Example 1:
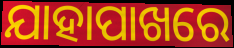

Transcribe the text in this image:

ଯାହାପାଖରେ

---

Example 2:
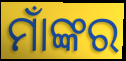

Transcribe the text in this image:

ମାଁଙ୍କର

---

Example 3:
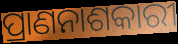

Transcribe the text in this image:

ପ୍ରାଣନାଶକାରୀ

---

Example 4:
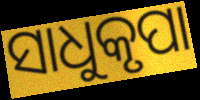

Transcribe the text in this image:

ସାଧୁକୃପା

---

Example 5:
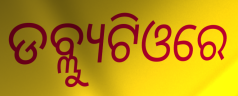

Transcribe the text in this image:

ଡବ୍ଲ୍ୟୁଟିଓରେ